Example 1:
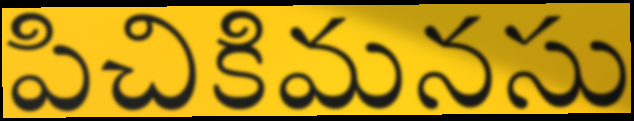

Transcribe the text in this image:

పిచికిమనసు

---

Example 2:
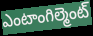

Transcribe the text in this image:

ఎంటాంగిల్మెంట్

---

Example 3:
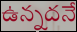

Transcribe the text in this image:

ఉన్నదనే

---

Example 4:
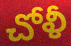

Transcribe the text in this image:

చోళీ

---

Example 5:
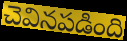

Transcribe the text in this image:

చెవినపడింది